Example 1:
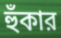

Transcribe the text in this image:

হুঁকার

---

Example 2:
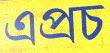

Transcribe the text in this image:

এপ্রচ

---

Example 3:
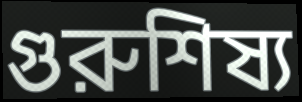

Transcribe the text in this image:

গুরুশিষ্য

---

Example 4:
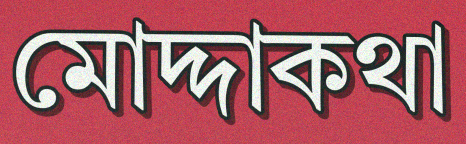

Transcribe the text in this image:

মোদ্দাকথা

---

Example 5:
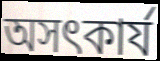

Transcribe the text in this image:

অসৎকার্য